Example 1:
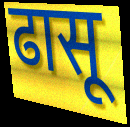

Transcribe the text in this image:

ढासू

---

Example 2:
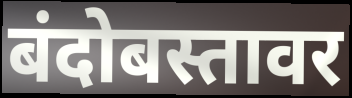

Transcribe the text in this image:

बंदोबस्तावर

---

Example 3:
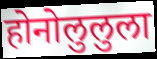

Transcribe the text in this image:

होनोलुलुला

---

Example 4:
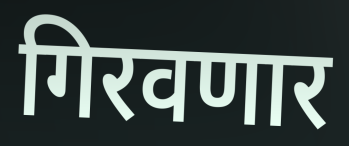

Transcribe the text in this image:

गिरवणार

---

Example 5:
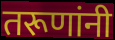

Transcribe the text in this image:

तरूणांनी